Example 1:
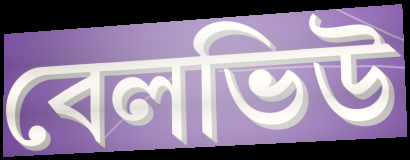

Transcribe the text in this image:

বেলভিউ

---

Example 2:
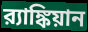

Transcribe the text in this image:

র‍্যাঙ্কিয়ান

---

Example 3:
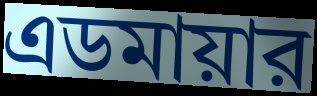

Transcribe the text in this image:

এডমায়ার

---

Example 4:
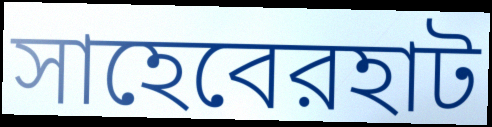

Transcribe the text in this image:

সাহেবেরহাট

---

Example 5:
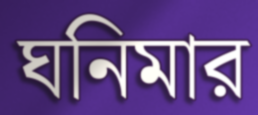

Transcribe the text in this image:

ঘনিমার